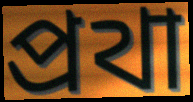
প্ৰথা